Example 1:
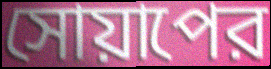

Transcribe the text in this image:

সোয়াপের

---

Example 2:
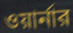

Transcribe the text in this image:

ওয়ার্নার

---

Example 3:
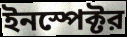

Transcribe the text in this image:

ইনস্পেক্টর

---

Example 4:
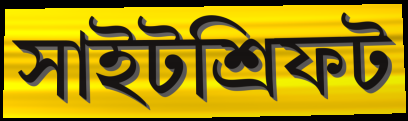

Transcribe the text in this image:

সাইটশ্রিফট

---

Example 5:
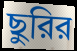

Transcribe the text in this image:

ছুরির